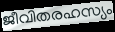
ജീവിതരഹസ്യം